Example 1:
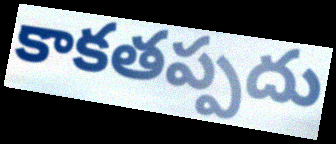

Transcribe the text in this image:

కాకతప్పదు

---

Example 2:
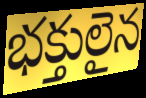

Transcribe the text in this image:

భక్తులైన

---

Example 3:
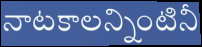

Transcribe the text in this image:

నాటకాలన్నింటినీ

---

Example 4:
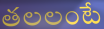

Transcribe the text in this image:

తలలంటే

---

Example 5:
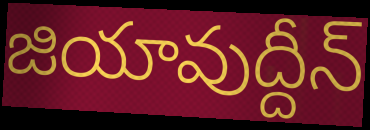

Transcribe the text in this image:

జియావుద్దీన్